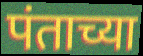
पंताच्या